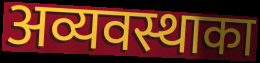
अव्यवस्थाका